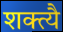
शक्त्यै